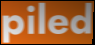
piled